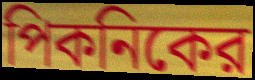
পিকনিকের